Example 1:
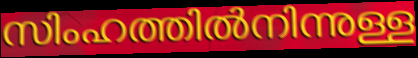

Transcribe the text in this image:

സിംഹത്തിൽനിന്നുള്ള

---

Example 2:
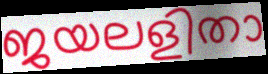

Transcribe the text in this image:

ജയലളിതാ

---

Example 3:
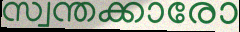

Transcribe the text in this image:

സ്വന്തക്കാരോ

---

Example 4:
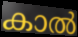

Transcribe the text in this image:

കാൽ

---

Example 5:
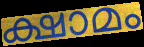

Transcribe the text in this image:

ക്ഷാമം